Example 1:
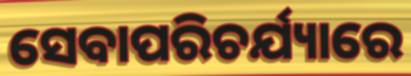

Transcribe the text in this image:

ସେବାପରିଚର୍ଯ୍ୟାରେ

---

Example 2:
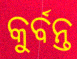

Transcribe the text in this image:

କୁର୍ବନ୍ତ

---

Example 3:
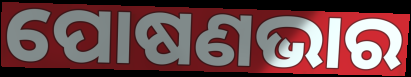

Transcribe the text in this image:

ପୋଷଣଭାର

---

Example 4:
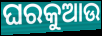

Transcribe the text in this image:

ଘରକୁଆଉ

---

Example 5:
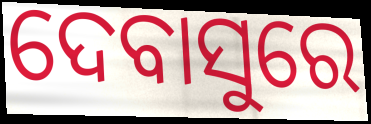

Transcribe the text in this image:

ଦେବାସୁରେ